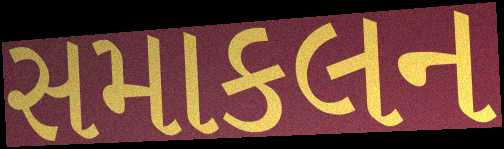
સમાકલન